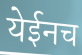
येईनच